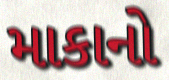
માકાનો